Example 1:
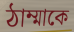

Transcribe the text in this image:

ঠাম্মাকে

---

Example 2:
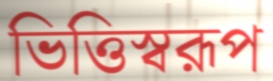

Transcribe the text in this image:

ভিত্তিস্বরূপ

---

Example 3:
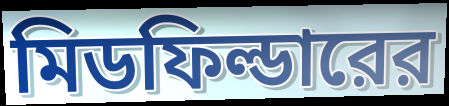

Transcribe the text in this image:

মিডফিল্ডারের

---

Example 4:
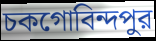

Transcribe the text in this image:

চকগোবিন্দপুর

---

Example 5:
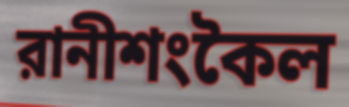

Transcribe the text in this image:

রানীশংকৈল